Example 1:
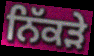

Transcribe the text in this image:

ਨਿੱਕੜੇ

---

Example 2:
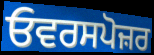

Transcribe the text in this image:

ਓਵਰਸਪੋਜ਼ਰ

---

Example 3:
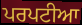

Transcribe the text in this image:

ਪਰਪਟੀਆ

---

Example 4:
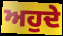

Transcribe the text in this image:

ਅਹੁਦੇ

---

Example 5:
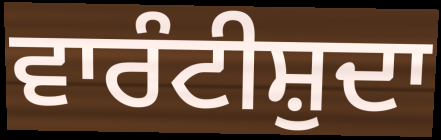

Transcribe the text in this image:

ਵਾਰੰਟੀਸ਼ੁਦਾ